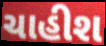
ચાહીશ